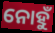
ନୋହୁଁ